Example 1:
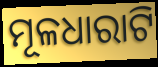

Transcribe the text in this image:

ମୂଳଧାରାଟି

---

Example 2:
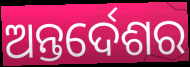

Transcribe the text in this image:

ଅନ୍ତର୍ଦେଶର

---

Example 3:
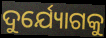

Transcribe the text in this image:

ଦୁର୍ଯ୍ୟୋଗକୁ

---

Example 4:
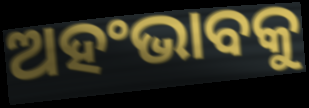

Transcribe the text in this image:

ଅହଂଭାବକୁ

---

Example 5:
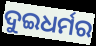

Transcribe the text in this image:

ଦୁଇଧର୍ମର